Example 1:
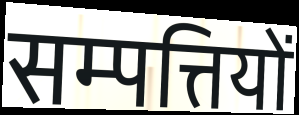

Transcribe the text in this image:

सम्पत्तियों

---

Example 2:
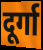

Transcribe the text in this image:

दूर्गा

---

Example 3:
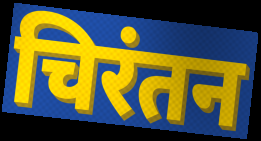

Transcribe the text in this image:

चिरंतन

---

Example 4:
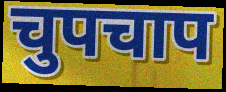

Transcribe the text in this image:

चुपचाप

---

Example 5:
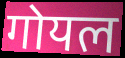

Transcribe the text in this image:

गोयल